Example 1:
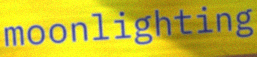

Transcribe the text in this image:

moonlighting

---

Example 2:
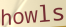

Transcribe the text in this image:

howls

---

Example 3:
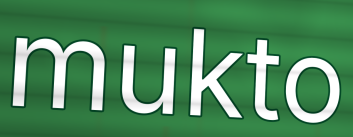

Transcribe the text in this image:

mukto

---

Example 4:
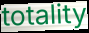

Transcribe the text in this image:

totality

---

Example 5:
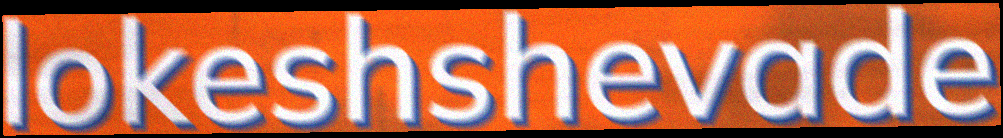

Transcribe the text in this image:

lokeshshevade